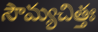
సౌమ్యచిత్తః